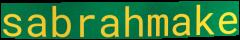
sabrahmake